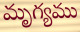
మృగ్యము